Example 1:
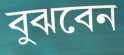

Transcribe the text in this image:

বুঝবেন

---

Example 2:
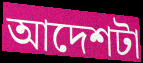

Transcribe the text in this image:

আদেশটা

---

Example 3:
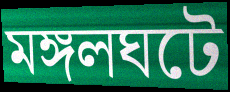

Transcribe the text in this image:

মঙ্গলঘটে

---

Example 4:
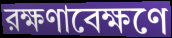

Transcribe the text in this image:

রক্ষণাবেক্ষণে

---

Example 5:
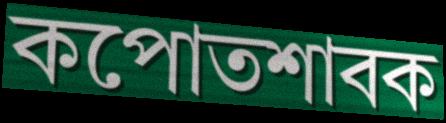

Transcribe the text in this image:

কপোতশাবক